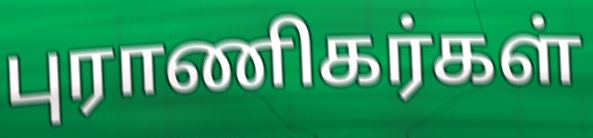
புராணிகர்கள்